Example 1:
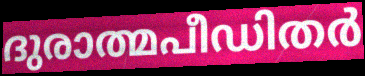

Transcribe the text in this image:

ദുരാത്മപീഡിതർ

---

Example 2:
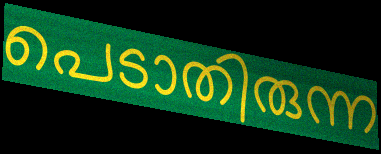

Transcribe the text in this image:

പെടാതിരുന്ന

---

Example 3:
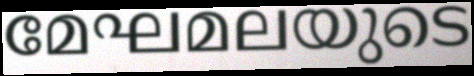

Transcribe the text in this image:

മേഘമലയുടെ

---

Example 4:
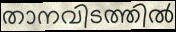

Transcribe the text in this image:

താനവിടത്തിൽ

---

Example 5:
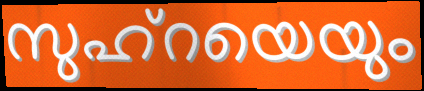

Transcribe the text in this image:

സുഹ്റയെയും